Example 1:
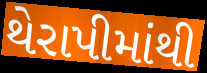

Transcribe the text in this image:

થેરાપીમાંથી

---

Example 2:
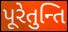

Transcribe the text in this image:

પૂરેતુન્તિ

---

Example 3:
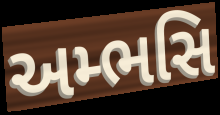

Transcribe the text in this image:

અમ્ભસિ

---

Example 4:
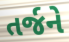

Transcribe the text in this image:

તર્જને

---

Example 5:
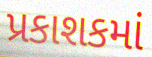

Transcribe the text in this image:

પ્રકાશકમાં